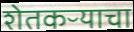
शेतकऱ्याचा